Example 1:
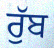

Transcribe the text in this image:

ਰੁੱਬ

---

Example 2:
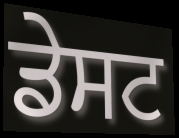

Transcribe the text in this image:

ਡੇਸਟ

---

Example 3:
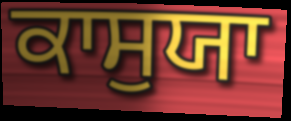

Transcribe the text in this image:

ਕਾਸੁਯਾ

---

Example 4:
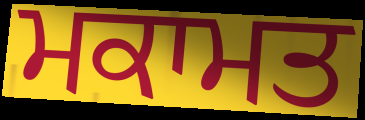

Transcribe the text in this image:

ਮਕਾਮਤ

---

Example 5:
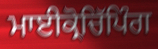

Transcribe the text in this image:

ਮਾਈਕ੍ਰੋਚਿੱਪਿੰਗ